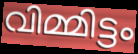
വിമ്മിട്ടം